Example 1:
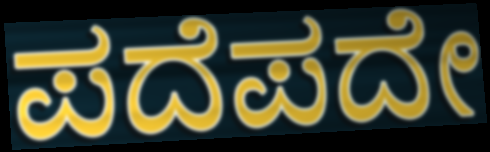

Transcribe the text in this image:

ಪದೆಪದೇ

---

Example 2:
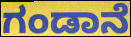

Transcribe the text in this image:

ಗಂಡಾನೆ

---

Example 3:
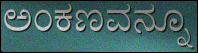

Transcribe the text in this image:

ಅಂಕಣವನ್ನೂ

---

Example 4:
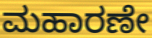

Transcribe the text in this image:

ಮಹಾರಣೇ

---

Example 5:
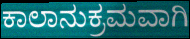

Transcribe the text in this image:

ಕಾಲಾನುಕ್ರಮವಾಗಿ